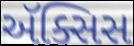
ઍક્સિસ